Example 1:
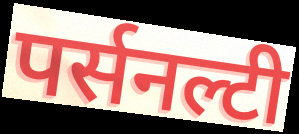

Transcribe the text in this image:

पर्सनल्टी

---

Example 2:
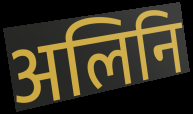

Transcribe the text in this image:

अलिनि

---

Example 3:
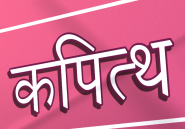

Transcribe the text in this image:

कपित्थ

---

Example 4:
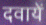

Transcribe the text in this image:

दवायें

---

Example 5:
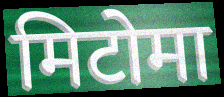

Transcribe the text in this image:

मिटोमा